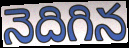
నెదిగిన